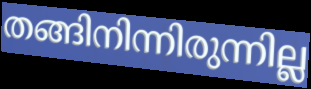
തങ്ങിനിന്നിരുന്നില്ല